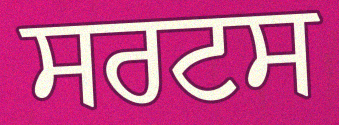
ਸਰਟਸ